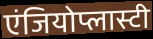
एंजियोप्लास्टी